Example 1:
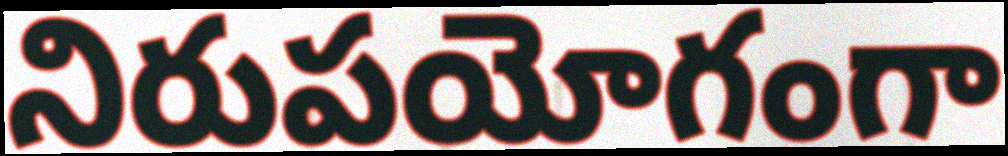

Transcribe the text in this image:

నిరుపయోగంగా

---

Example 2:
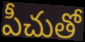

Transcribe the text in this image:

పీచుతో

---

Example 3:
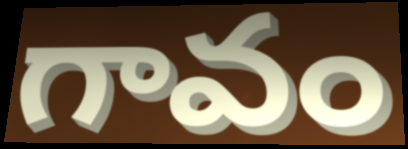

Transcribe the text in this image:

గావం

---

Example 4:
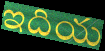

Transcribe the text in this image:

ఇదియ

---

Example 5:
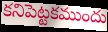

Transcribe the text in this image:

కనిపెట్టకముందు